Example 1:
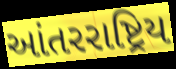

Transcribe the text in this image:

આંતરરાષ્ટ્રિય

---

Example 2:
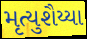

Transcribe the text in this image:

મૃત્યુશૈય્યા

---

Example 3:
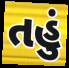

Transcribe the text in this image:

તહું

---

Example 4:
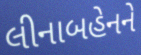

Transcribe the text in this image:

લીનાબહેનને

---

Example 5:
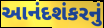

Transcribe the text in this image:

આનંદશંકરનું